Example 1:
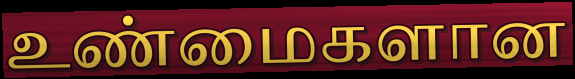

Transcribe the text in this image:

உண்மைகளான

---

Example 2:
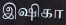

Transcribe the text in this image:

இஷிகா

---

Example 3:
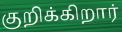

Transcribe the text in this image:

குறிக்கிறார்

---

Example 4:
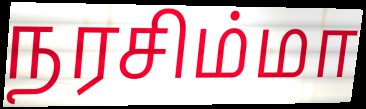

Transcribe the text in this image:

நரசிம்மா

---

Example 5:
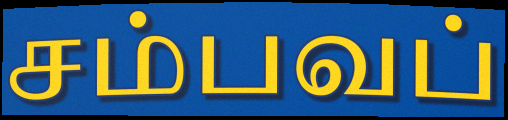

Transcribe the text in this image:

சம்பவப்